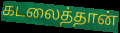
கடலைத்தான்